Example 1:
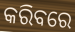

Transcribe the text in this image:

କରିବରେ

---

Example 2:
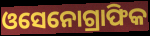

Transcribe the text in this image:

ଓସେନୋଗ୍ରାଫିକ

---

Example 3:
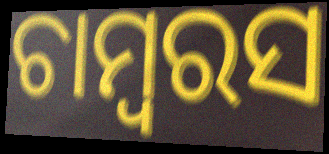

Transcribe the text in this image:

ଚାମ୍ବରସ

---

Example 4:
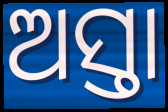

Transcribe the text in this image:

ଅସ୍ତା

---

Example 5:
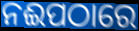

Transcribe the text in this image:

ନଈପଠାରେ